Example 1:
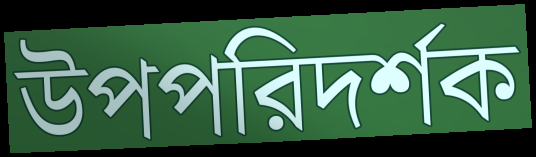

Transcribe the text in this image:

উপপরিদর্শক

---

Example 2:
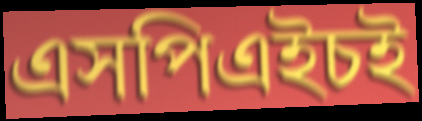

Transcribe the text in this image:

এসপিএইচই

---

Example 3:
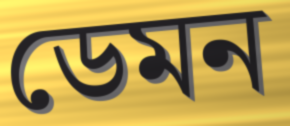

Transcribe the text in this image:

ডেমন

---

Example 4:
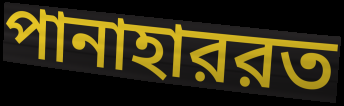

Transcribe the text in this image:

পানাহাররত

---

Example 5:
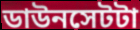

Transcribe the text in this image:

ডাউনসেটটা